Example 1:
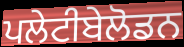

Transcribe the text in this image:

ਪਲੇਟੀਬੇਲੋਡਨ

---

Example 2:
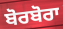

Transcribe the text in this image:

ਬੋਰਬੋਰਾ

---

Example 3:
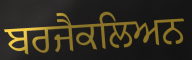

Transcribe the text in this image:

ਬਰਜੈਕਲਿਅਨ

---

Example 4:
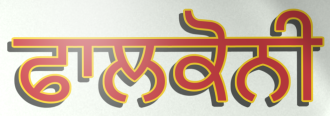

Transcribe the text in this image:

ਫਾਲਕੋਨੀ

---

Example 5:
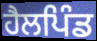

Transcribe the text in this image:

ਹੈਲਪਿੰਡ